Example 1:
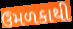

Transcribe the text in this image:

ઉમળકાથી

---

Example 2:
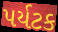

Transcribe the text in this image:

પર્યટક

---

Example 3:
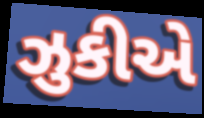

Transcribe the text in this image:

ઝુકીએ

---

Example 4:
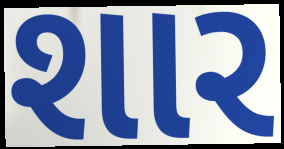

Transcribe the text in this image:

શાર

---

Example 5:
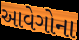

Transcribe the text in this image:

આવેગોના